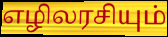
எழிலரசியும்